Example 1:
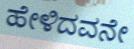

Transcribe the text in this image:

ಹೇಳಿದವನೇ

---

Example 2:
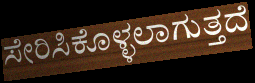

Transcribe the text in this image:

ಸೇರಿಸಿಕೊಳ್ಳಲಾಗುತ್ತದೆ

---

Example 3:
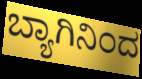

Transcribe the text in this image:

ಬ್ಯಾಗಿನಿಂದ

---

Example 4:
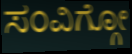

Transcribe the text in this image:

ಸಂವಿಗ್ಗೋ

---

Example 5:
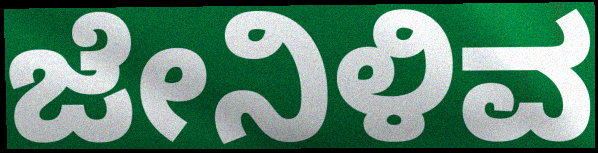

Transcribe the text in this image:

ಜೇನಿಳಿವ